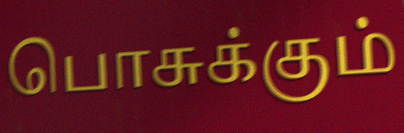
பொசுக்கும்